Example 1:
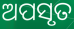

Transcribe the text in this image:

ଅପସୃତ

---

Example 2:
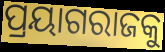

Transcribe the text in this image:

ପ୍ରୟାଗରାଜକୁ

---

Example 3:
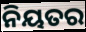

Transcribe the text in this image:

ନିୟତର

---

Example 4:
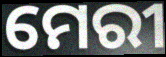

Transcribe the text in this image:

ମେରୀ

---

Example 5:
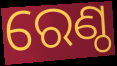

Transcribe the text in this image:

ରେଣ୍ଠ